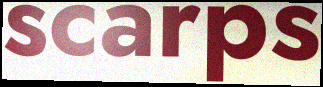
scarps